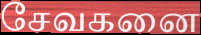
சேவகனை